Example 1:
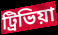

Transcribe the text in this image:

ট্রিভিয়া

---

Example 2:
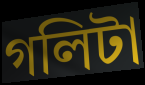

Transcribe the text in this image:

গলিটা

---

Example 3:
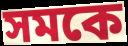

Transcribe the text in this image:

সমকে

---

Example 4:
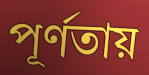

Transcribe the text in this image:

পূর্ণতায়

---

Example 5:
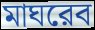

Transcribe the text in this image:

মাঘরেব